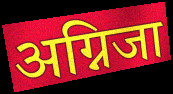
अग्निजा